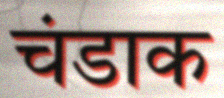
चंडाक